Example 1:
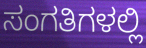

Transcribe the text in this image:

ಸಂಗತಿಗಳಲ್ಲಿ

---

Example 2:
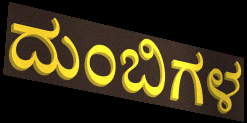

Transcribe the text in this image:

ದುಂಬಿಗಳ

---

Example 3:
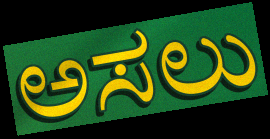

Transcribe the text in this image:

ಅಸಲು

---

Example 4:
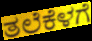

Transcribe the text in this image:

ತಲೆಕೆಳಗೆ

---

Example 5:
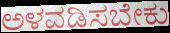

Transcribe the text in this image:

ಅಳವಡಿಸಬೇಕು